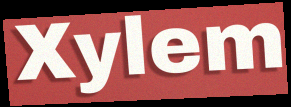
Xylem